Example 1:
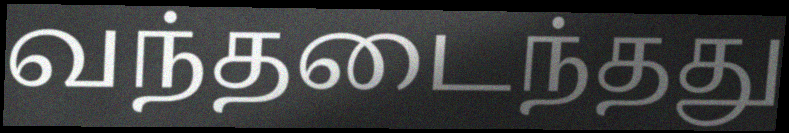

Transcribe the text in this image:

வந்தடைந்தது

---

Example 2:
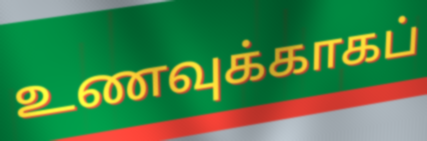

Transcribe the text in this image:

உணவுக்காகப்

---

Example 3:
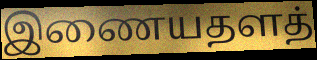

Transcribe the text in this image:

இணையதளத்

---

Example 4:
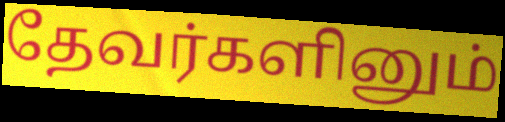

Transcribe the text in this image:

தேவர்களினும்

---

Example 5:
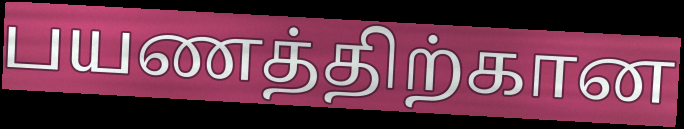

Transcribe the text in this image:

பயணத்திற்கான